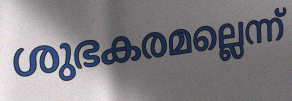
ശുഭകരമല്ലെന്ന്